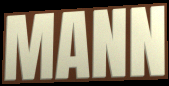
MANN